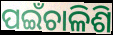
ପଇଁଚାଳିଶି